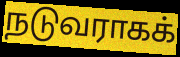
நடுவராகக்